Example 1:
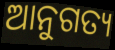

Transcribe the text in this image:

ଆନୁଗତ୍ୟ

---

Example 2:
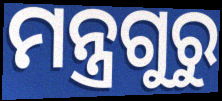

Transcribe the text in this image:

ମନ୍ତ୍ରଗୁରୁ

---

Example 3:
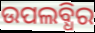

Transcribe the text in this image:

ଉପଲବ୍ଧିର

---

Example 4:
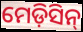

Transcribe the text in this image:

ମେଡ଼ିସିନ୍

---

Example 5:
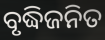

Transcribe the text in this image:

ବୃଦ୍ଧିଜନିତ